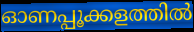
ഓണപ്പൂക്കളത്തിൽ